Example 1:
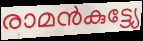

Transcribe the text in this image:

രാമൻകുട്ട്യേ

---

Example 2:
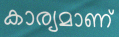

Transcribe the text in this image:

കാര്യമാണ്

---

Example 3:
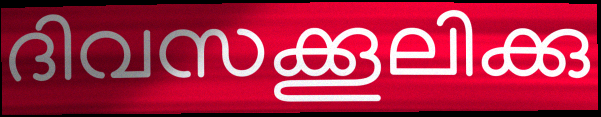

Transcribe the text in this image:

ദിവസക്കൂലിക്കു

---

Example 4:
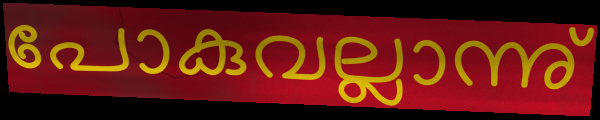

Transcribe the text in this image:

പോകുവല്ലാന്നു്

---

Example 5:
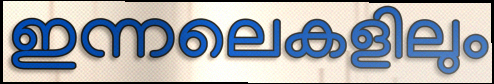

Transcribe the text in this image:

ഇന്നലെകളിലും